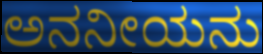
ಅನನೀಯನು